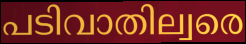
പടിവാതില്വരെ